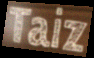
Taiz